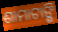
ଶାମାଟାଙ୍ଗି